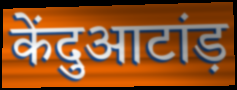
केंदुआटांड़